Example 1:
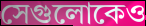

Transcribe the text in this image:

সেগুলোকেও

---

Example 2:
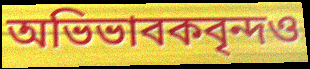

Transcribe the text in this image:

অভিভাবকবৃন্দও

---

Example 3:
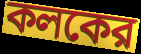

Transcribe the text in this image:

কলকের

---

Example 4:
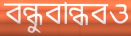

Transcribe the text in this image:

বন্ধুবান্ধবও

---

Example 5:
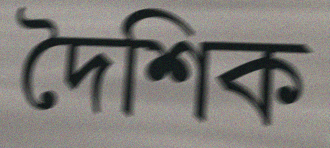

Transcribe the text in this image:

দৈশিক